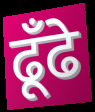
ढूँढे